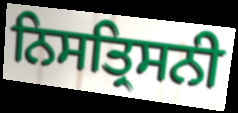
ਨਿਸਤ੍ਰਿਸਨੀ